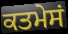
ਕਤਮੇਸਂ